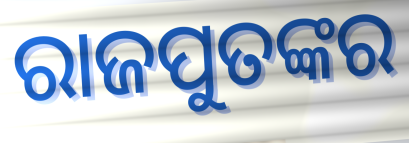
ରାଜପୁତଙ୍କର